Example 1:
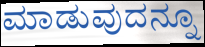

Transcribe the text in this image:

ಮಾಡುವುದನ್ನೂ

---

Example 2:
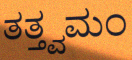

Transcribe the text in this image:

ತತ್ತ್ವಮಂ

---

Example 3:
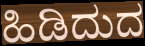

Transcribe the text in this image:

ಹಿಡಿದುದ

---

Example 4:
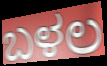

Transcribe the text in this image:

ಬಳಲ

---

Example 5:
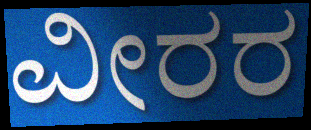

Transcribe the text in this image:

ವೀರರ